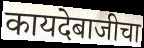
कायदेबाजीचा